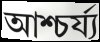
আশ্চর্য্য